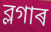
ব্লগাৰ